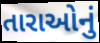
તારાઓનું